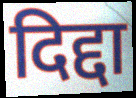
दिद्दा